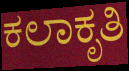
ಕಲಾಕೃತಿ